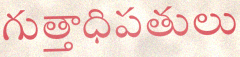
గుత్తాధిపతులు